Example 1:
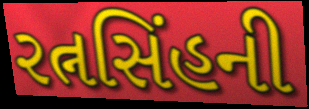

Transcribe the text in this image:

રત્નસિંહની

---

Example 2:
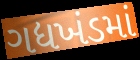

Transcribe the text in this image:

ગદ્યખંડમાં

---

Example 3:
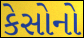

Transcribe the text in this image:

કેસોનો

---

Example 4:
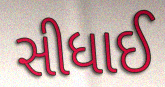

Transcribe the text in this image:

સીધાઈ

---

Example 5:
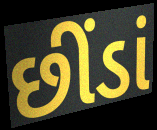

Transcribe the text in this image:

છીંડાં